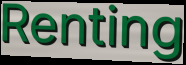
Renting